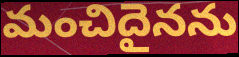
మంచిదైనను